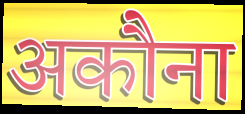
अकौना